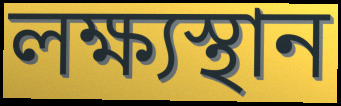
লক্ষ্যস্থান